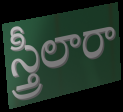
స్త్రీలారా